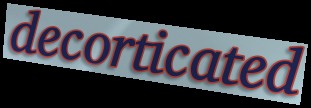
decorticated